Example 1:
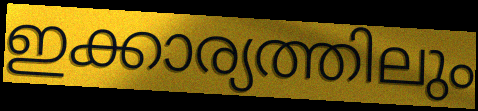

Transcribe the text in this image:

ഇക്കാര്യത്തിലും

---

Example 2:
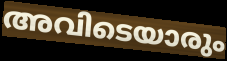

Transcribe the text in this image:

അവിടെയാരും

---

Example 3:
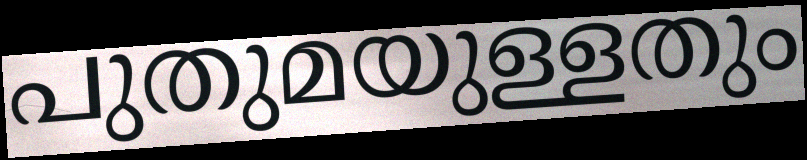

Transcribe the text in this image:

പുതുമയുള്ളതും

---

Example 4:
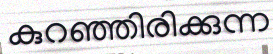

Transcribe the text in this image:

കുറഞ്ഞിരിക്കുന്ന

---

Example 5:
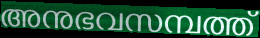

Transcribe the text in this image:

അനുഭവസമ്പത്ത്